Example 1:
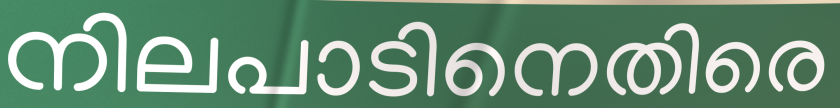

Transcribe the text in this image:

നിലപാടിനെതിരെ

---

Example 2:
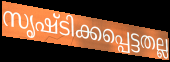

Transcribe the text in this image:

സൃഷ്ടിക്കപ്പെട്ടതല്ല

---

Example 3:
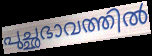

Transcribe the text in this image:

പുച്ഛഭാവത്തിൽ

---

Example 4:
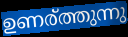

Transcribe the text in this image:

ഉണര്ത്തുന്നു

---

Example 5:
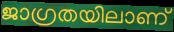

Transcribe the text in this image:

ജാഗ്രതയിലാണ്